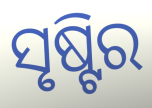
ସୃଷ୍ଟିର